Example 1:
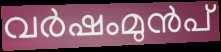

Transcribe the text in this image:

വർഷംമുൻപ്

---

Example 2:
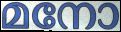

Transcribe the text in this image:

മനോ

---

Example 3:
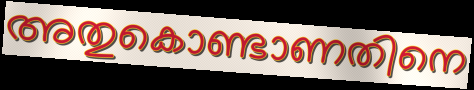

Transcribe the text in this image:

അതുകൊണ്ടാണതിനെ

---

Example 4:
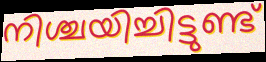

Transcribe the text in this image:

നിശ്ചയിച്ചിട്ടുണ്ട്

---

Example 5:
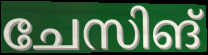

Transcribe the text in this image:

ചേസിങ്